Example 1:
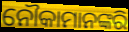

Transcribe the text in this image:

ନୌକାମାନଙ୍କରି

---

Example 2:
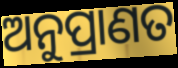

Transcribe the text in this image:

ଅନୁପ୍ରାଣତ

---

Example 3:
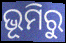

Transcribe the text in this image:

ଭୂମିରୁ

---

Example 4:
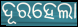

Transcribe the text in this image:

ଦୂରହେଲା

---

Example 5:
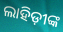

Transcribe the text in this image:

ଲାହିଡ଼ୀଙ୍କ